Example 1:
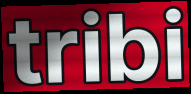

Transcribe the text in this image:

tribi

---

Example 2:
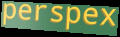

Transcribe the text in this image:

perspex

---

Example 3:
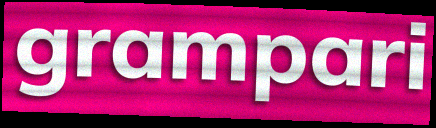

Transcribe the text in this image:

grampari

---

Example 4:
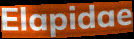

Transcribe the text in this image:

Elapidae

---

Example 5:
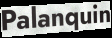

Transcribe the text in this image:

Palanquin